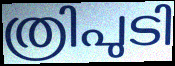
ത്രിപുടി